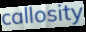
callosity